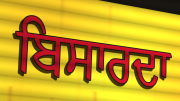
ਬਿਸਾਰਦਾ